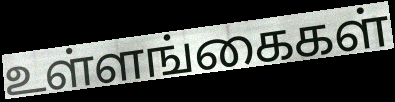
உள்ளங்கைகள்